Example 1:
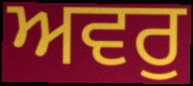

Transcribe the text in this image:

ਅਵਰੁ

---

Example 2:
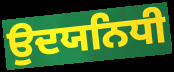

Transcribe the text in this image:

ਉਦਯਨਿਧੀ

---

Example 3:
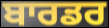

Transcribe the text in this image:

ਬਾਰਡਰ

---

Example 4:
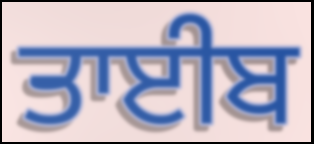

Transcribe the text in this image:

ਤਾਈਬ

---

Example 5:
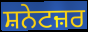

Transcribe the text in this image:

ਸ਼ਨੇਟਜ਼ਰ